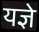
यज्ञे